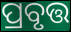
ପ୍ରବୃତ୍ତ